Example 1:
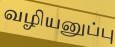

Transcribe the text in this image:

வழியனுப்பு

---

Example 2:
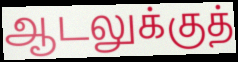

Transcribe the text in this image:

ஆடலுக்குத்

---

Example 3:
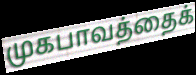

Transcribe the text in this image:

முகபாவத்தைக்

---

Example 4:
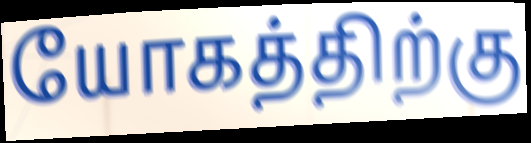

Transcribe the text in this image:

யோகத்திற்கு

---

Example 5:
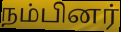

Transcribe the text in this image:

நம்பினர்